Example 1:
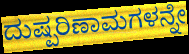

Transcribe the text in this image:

ದುಷ್ಪರಿಣಾಮಗಳನ್ನೇ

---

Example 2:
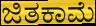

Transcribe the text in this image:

ಜಿತಕಾಮೆ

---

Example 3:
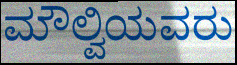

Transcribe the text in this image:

ಮೌಲ್ವಿಯವರು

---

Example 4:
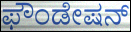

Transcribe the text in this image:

ಫೌಂಡೇಷನ್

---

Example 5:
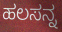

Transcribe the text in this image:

ಹಲಸನ್ನ